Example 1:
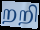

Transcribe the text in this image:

றறி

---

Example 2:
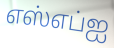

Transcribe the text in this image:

எஸ்எப்ஐ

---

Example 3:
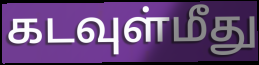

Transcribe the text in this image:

கடவுள்மீது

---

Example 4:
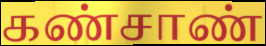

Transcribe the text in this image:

கண்சாண்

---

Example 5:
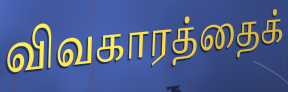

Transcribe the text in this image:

விவகாரத்தைக்